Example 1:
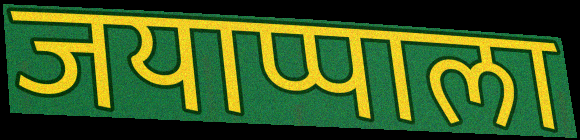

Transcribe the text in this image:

जयाप्पाला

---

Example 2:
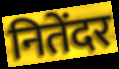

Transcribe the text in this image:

नितेंदर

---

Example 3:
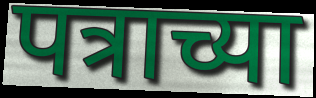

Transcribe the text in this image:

पत्राच्या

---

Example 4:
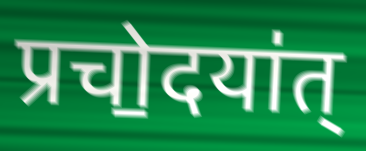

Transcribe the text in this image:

प्रचो॒दया॑त्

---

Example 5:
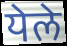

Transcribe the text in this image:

येले